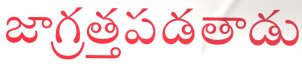
జాగ్రత్తపడతాడు